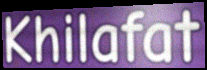
Khilafat